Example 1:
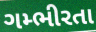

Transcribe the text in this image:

ગમ્ભીરતા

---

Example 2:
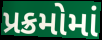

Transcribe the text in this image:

પ્રક્રમોમાં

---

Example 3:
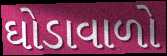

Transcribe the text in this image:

ઘોડાવાળો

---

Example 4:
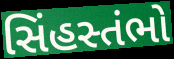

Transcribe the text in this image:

સિંહસ્તંભો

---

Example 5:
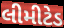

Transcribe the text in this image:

લીમીટેડ